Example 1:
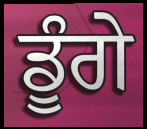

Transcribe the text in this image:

ਡੂੰਗੇ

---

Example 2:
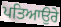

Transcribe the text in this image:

ਪਤਿਆਉਰੇ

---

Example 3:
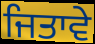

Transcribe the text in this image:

ਜਿਤਾਵੇ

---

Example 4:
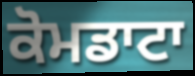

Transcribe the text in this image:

ਕੋਮਡਾਟਾ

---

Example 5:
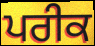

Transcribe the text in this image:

ਪਰੀਕ